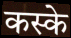
कस्के